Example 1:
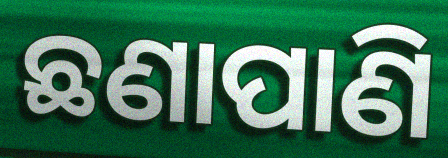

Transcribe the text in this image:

ଛଣାପାଣି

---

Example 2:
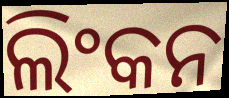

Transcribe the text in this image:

ଲିଂକନ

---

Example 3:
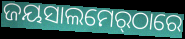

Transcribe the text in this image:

ଜୟସାଲମେର୍‌ଠାରେ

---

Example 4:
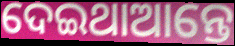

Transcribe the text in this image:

ଦେଇଥାଆନ୍ତେ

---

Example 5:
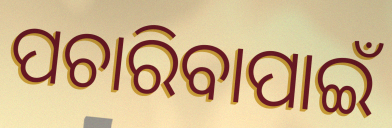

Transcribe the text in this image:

ପଚାରିବାପାଇଁ